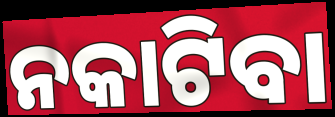
ନକାଟିବା